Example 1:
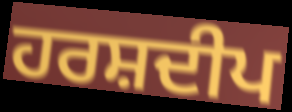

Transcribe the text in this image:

ਹਰਸ਼ਦੀਪ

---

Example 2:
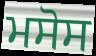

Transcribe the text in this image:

ਮਸੋਸ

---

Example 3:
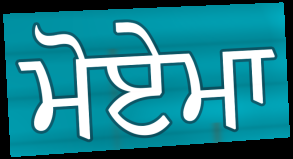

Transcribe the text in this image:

ਮੋਏਮਾ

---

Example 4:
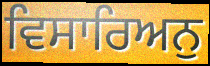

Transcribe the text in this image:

ਵਿਸਾਰਿਅਨੁ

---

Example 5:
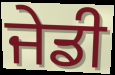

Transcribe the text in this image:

ਜੇਡੀ